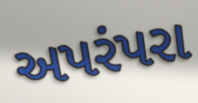
અપરંપરા